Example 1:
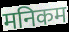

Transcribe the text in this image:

मनिकम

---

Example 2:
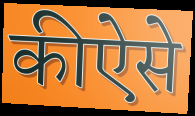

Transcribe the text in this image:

कीऐसे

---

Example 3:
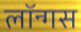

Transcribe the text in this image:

लॉन्गस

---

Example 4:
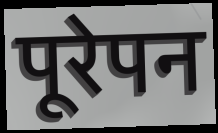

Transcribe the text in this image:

पूरेपन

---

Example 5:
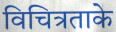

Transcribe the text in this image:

विचित्रताके